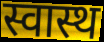
स्वास्थ